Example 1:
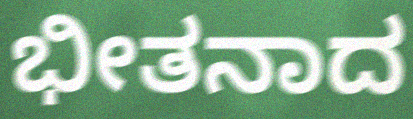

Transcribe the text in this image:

ಭೀತನಾದ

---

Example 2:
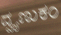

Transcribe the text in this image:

ದ್ವ್ಯಣುಕಂ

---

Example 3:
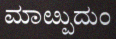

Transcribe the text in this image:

ಮಾೞ್ಪುದುಂ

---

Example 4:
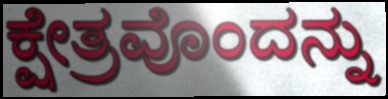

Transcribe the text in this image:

ಕ್ಷೇತ್ರವೊಂದನ್ನು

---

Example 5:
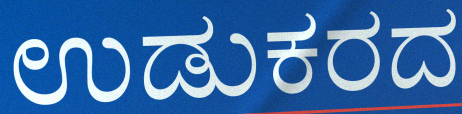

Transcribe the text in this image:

ಉಡುಕರದ